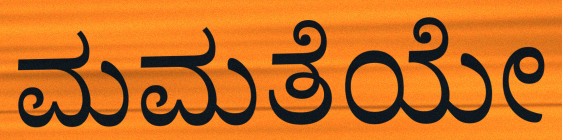
ಮಮತೆಯೇ